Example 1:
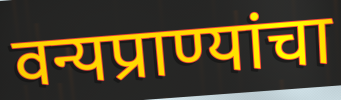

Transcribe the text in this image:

वन्यप्राण्यांचा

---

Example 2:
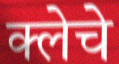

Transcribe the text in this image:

क्लेचे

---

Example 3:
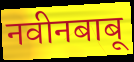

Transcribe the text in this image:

नवीनबाबू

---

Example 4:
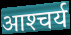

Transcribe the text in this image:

आश्‍चर्य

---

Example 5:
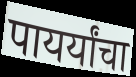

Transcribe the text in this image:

पायर्यांचा